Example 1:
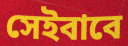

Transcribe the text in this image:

সেইবাবে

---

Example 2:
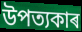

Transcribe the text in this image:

উপত্যকাৰ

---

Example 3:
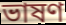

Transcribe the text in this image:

ভাষণ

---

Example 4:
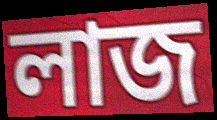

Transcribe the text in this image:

লাজ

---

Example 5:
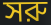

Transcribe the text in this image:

সৰু